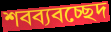
শবব্যবচ্ছেদ